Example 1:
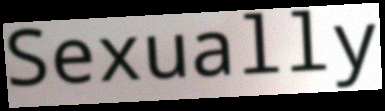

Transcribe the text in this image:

Sexually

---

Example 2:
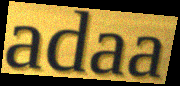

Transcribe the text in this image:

adaa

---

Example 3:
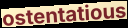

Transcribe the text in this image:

ostentatious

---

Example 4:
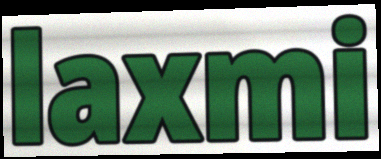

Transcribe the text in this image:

laxmi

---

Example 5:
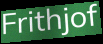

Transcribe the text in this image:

Frithjof